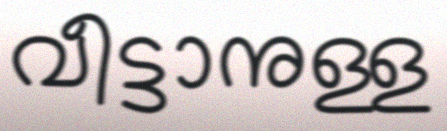
വീട്ടാനുള്ള